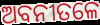
ଅବନୀତଳେ